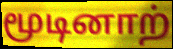
மூடினாற்